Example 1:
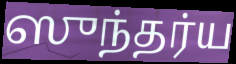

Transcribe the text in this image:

ஸுந்தர்ய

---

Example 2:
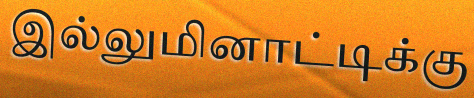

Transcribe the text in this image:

இல்லுமினாட்டிக்கு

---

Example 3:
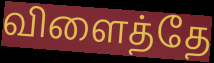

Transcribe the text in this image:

விளைத்தே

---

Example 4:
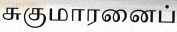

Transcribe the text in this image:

சுகுமாரனைப்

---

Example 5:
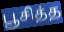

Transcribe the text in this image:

பூசித்த